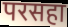
परसहा